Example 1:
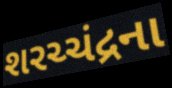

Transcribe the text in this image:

શરચ્ચંદ્રના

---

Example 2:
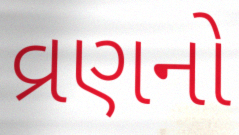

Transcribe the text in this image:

વ્રણનો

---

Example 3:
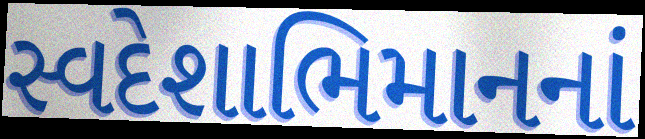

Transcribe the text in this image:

સ્વદેશાભિમાનનાં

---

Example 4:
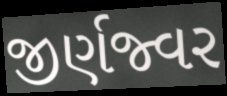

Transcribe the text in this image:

જીર્ણજ્વર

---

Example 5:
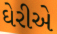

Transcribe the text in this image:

ઘેરીએ